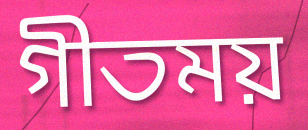
গীতময়